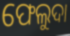
ଫେଲୁଦା